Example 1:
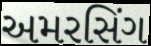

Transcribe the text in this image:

અમરસિંગ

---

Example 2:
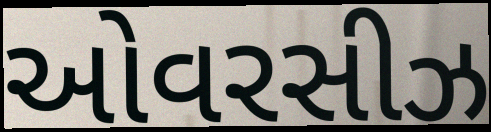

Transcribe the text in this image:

ઓવરસીઝ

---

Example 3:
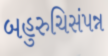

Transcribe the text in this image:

બહુરુચિસંપન્ન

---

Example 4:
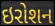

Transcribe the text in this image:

ઇરોશન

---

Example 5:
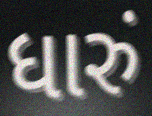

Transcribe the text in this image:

ધારું